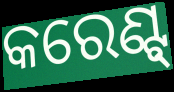
କରେଣ୍ଟ୍